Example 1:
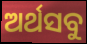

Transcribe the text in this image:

ଅର୍ଥସବୁ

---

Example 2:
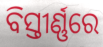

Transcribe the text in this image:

ବିସ୍ତୀର୍ଣ୍ଣରେ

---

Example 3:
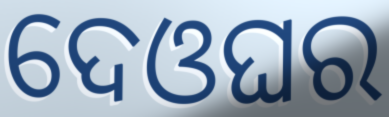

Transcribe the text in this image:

ଦେଓଘର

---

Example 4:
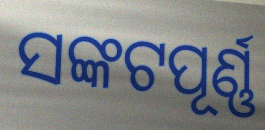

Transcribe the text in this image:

ସଙ୍କଟପୂର୍ଣ୍ଣ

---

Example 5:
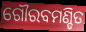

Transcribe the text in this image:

ଗୌରବମଣ୍ଡିତ